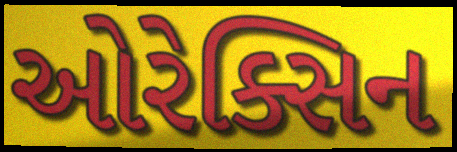
ઓરેક્સિન